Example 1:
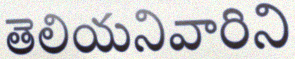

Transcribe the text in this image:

తెలియనివారిని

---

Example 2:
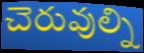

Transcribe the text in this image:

చెరువుల్ని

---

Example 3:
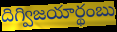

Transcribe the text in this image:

దిగ్విజయార్థంబు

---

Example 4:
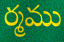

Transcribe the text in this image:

ర్మము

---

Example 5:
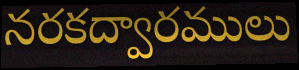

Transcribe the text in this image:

నరకద్వారములు